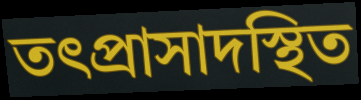
তৎপ্রাসাদস্থিত